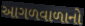
આગળવાળાનો